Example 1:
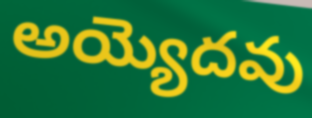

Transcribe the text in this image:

అయ్యెదవు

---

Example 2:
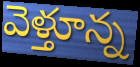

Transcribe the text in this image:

వెళ్తూన్న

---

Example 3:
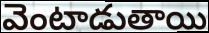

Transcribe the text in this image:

వెంటాడుతాయి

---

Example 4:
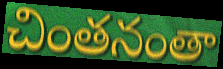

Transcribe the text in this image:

చింతనంతా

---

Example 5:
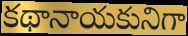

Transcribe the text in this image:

కథానాయకునిగా